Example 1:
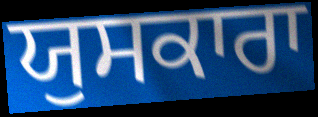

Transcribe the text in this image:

ਯੁਸਕਾਰਾ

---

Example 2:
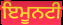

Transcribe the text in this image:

ਇਮੂਨਟੀ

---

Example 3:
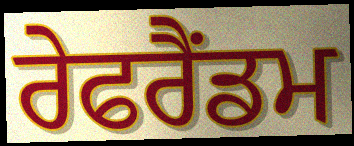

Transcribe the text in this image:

ਰੇਫਰੈਂਡਮ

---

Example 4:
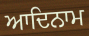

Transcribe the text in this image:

ਆਦਿਨਾਮ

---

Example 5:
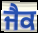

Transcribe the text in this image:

ਜੈਕ